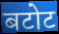
बटोट